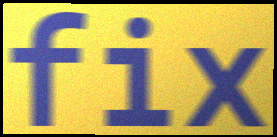
fix